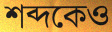
শব্দকেও